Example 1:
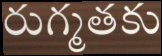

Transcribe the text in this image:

రుగ్మతకు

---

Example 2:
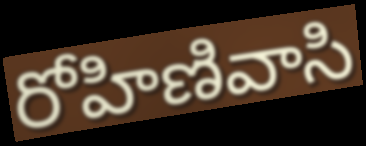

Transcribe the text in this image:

రోహిణివాసి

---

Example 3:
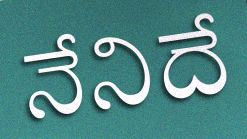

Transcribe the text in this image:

నేనిదే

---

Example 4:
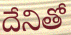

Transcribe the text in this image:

దేనితో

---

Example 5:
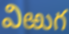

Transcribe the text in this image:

విఱుగ